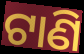
ଟାଣି